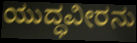
ಯುದ್ಧವೀರನು